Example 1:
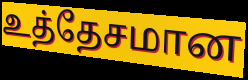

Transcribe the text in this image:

உத்தேசமான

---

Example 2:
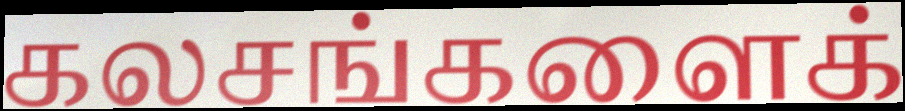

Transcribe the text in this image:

கலசங்களைக்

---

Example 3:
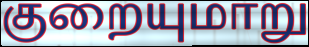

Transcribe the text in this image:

குறையுமாறு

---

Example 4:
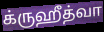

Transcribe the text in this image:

க்ருஹீத்வா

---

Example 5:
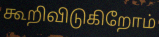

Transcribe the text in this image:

கூறிவிடுகிறோம்